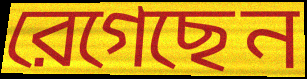
রেগেছেন